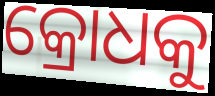
କ୍ରୋଧକୁ